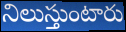
నిలుస్తుంటారు